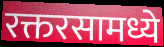
रक्तरसामध्ये